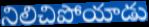
నిలిచిపోయాడు